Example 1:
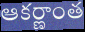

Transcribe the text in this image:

ఆకర్ణాంత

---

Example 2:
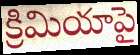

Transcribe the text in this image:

క్రిమియాపై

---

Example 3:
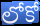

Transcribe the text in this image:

లోకో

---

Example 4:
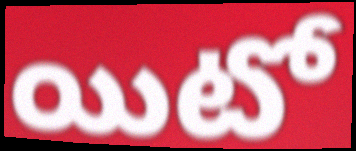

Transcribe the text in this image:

యిటో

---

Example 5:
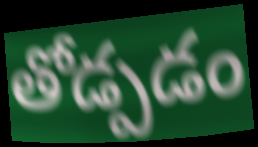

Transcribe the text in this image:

తోడ్పడం